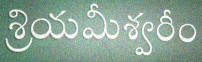
శ్రియమీశ్వరీం